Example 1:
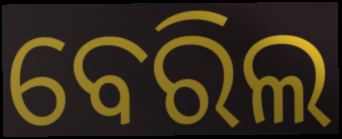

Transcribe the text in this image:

ବେରିଲ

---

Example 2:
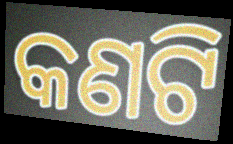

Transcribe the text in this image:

କଣଟି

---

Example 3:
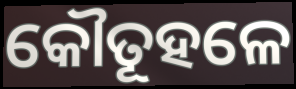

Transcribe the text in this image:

କୌତୂହଳେ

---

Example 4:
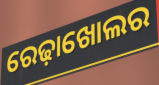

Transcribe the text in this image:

ରେଢ଼ାଖୋଲର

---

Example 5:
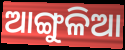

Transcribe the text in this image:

ଆଙ୍ଗୁଳିଆ